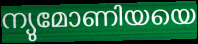
ന്യുമോണിയയെ